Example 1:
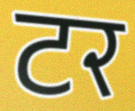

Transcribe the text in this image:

टर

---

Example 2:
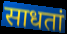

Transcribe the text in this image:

साधतां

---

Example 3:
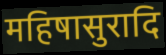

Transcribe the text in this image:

महिषासुरादि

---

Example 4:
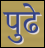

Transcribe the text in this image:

पुढे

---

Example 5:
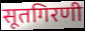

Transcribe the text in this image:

सूतगिरणी